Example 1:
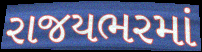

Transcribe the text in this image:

રાજયભરમાં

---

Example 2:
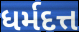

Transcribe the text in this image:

ધર્મદત્ત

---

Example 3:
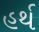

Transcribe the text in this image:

હર્થ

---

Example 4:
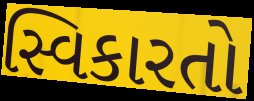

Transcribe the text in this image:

સ્વિકારતો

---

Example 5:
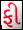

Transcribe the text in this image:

ફી